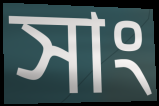
সাং